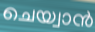
ചെയ്വാൻ